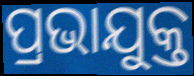
ପ୍ରଭାଯୁକ୍ତ